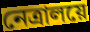
নেত্রালয়ে